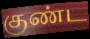
குண்ட